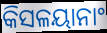
କିସଳୟାନାଂ